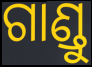
ଗାଣ୍ଡୁ